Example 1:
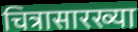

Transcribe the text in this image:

चित्रासारख्या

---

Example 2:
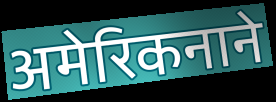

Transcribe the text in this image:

अमेरिकनाने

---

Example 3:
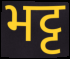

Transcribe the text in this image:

भट्ट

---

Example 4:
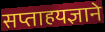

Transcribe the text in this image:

सप्ताहयज्ञाने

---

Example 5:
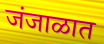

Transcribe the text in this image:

जंजाळात